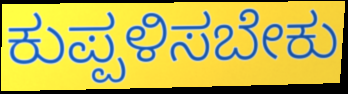
ಕುಪ್ಪಳಿಸಬೇಕು